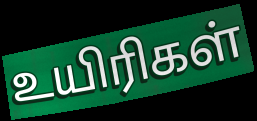
உயிரிகள்